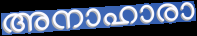
അനാഹാരാ